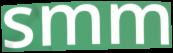
smm